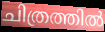
ചിത്രത്തിൽ